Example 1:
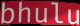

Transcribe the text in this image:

bhulu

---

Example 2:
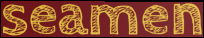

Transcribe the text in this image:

seamen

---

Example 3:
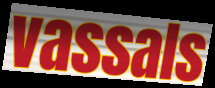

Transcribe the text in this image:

vassals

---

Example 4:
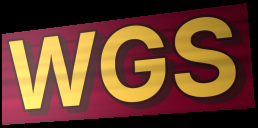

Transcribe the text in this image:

WGS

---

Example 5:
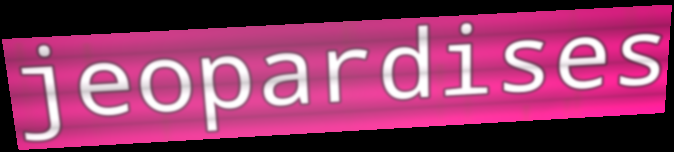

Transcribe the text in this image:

jeopardises